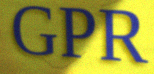
GPR